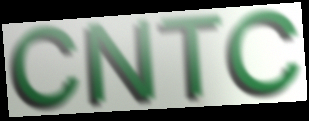
CNTC